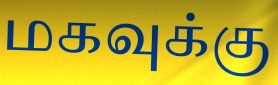
மகவுக்கு